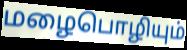
மழைபொழியும்